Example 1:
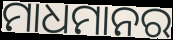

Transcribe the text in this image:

ମାଧମାନର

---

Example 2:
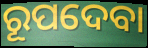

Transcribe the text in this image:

ରୂପଦେବା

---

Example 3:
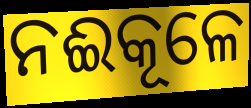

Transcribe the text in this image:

ନଈକୂଳେ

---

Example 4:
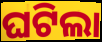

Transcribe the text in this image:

ଘଟିଲା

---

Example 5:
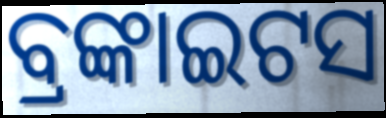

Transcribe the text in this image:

ବ୍ରଙ୍କାଇଟସ